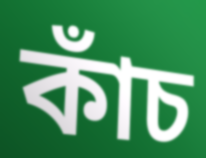
কাঁচ